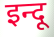
इन्दू